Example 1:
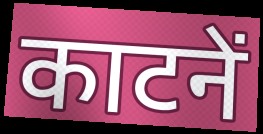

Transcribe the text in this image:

काटनें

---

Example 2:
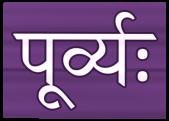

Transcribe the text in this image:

पूर्व्यः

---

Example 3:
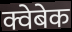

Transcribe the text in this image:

क्वेबेक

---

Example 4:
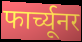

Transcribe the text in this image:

फार्च्यूनर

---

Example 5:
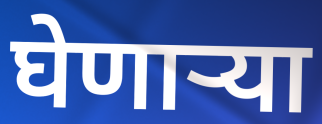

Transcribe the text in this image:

घेणाऱ्या